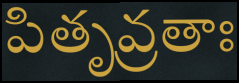
పితృవ్రతాః